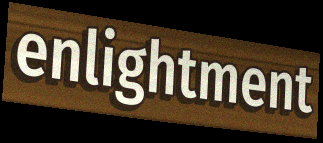
enlightment